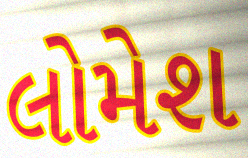
લોમેશ